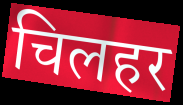
चिलहर